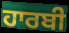
ਹਾਰਬੀ